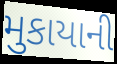
મુકાયાની